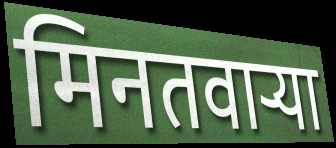
मिनतवार्‍या